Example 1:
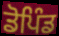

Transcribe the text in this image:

ਡੋਪਿੰਡ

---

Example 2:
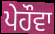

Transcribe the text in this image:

ਪੇਹੌਵਾ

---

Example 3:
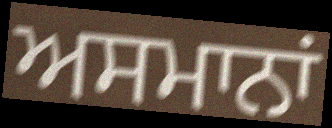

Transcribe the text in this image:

ਅਸਮਾਨਾਂ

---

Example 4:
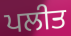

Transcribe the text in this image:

ਪਲੀਤ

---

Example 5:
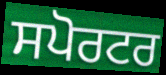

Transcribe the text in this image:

ਸਪੋਰਟਰ